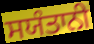
ਸਯੰਤਾਨੀ